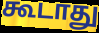
கூடாது